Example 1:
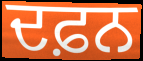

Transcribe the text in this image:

ਦਫ਼ਨ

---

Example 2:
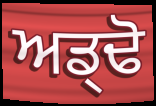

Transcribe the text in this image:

ਅਡ੍ਢੋ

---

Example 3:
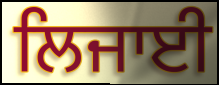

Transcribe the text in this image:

ਲਿਜਾਈ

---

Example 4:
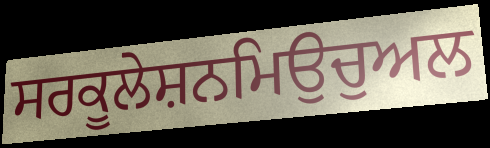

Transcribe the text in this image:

ਸਰਕੂਲੇਸ਼ਨਮਿਉਚੁਅਲ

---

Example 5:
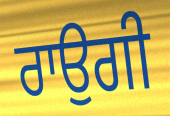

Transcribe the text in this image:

ਰਾਉਗੀ